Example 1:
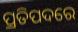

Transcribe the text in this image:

ପ୍ରତିପଦରେ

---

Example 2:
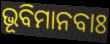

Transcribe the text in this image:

ଭୂବିମାନବାଃ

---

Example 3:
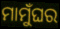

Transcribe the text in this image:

ମାମୁଁଘର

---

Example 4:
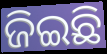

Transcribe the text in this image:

ଜିଇଛି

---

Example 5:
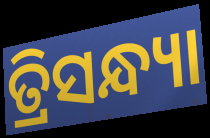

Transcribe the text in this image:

ତ୍ରିସନ୍ଧ୍ୟା